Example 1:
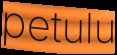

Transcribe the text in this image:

petulu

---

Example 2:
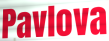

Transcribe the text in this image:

Pavlova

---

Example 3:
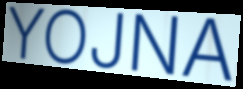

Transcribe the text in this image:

YOJNA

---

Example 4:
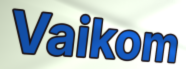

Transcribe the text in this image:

Vaikom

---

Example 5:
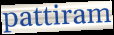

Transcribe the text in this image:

pattiram